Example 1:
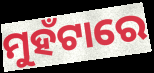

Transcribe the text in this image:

ମୁହଁଟାରେ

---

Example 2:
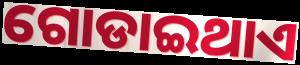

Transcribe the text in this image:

ଗୋଡାଇଥାଏ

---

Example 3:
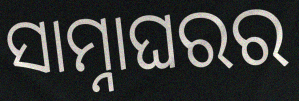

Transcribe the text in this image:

ସାମ୍ନାଘରର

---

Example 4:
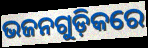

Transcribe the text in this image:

ଭଜନଗୁଡ଼ିକରେ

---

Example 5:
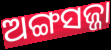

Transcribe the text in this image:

ଅଙ୍ଗସଜ୍ଜା